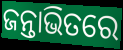
ଜନ୍ତାଭିତରେ